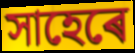
সাহেৰে